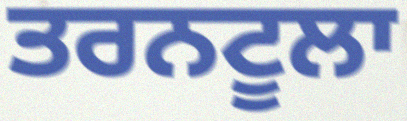
ਤਰਨਟੂਲਾ